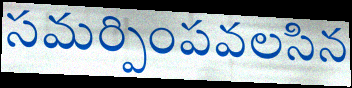
సమర్పింపవలసిన